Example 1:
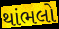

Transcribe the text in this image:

થાંભલો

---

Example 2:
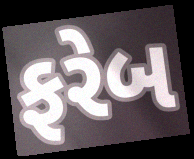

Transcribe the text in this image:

ફરેબ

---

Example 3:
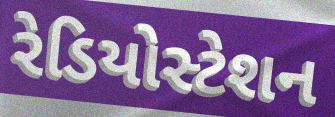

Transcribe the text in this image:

રેડિયોસ્ટેશન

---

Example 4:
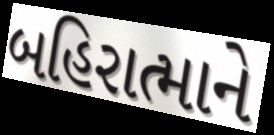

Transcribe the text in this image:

બહિરાત્માને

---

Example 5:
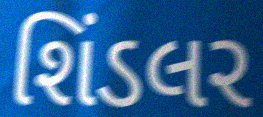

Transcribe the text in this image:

શિંડલર